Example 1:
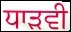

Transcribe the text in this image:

ਧਾੜਵੀ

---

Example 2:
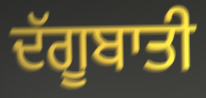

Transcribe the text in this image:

ਦੱਗੂਬਾਤੀ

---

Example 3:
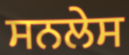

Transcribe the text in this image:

ਸਨਲੇਸ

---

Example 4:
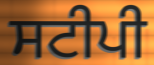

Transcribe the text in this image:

ਸਟੀਪੀ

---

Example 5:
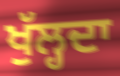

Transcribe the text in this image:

ਖੁੱਲ੍ਹਦਾ